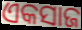
ଏକସାଜ